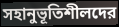
সহানুভূতিশীলদের